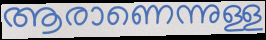
ആരാണെന്നുള്ള